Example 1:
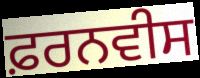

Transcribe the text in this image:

ਫ਼ਰਨਵੀਸ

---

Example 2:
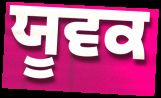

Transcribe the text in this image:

ਯੂਵਕ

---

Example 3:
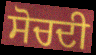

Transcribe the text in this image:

ਸੋਚਦੀ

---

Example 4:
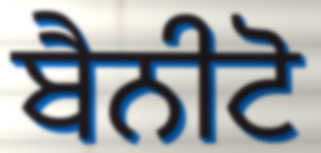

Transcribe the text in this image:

ਬੈਨੀਟੋ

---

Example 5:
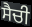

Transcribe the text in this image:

ਸੈਚੀ